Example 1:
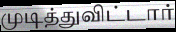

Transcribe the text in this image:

முடித்துவிட்டார்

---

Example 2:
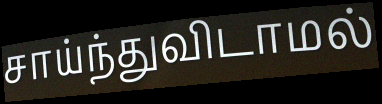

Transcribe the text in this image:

சாய்ந்துவிடாமல்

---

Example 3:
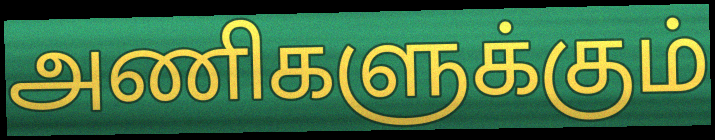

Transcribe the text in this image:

அணிகளுக்கும்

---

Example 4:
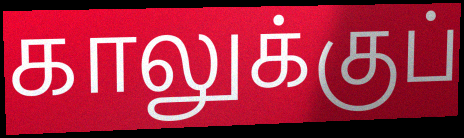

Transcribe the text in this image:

காலுக்குப்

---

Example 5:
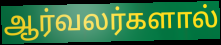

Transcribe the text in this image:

ஆர்வலர்களால்